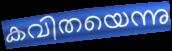
കവിതയെന്നു